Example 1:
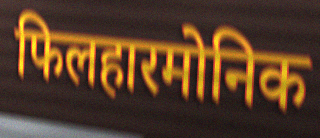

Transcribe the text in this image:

फिलहारमोनिक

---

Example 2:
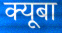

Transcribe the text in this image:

क्यूबा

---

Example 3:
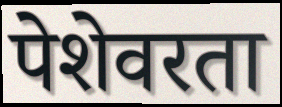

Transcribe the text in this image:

पेशेवरता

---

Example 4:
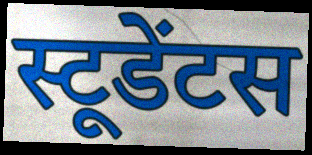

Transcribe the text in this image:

स्टूडेंटस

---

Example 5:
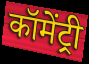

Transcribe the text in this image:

कॉमेंट्री